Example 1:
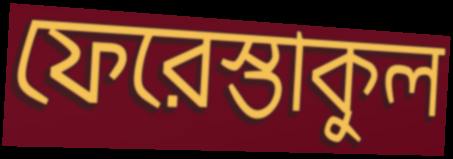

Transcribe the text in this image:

ফেরেস্তাকুল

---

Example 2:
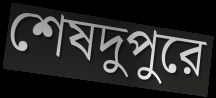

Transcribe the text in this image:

শেষদুপুরে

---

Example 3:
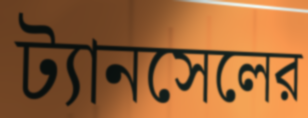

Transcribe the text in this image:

ট্যানসেলের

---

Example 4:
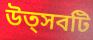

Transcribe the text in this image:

উত্সবটি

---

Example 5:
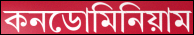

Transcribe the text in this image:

কনডোমিনিয়াম